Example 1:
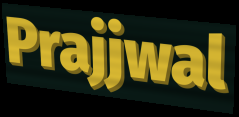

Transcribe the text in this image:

Prajjwal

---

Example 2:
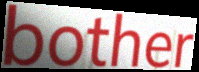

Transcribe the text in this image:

bother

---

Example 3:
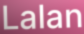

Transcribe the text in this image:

Lalan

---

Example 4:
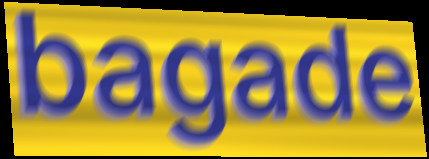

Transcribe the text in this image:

bagade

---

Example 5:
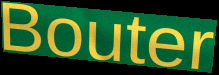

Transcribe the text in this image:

Bouter